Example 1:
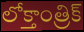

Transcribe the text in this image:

లోక్తాంత్రిక్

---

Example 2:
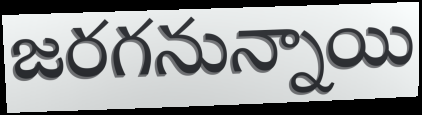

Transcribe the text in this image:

జరగనున్నాయి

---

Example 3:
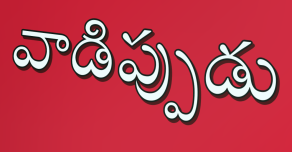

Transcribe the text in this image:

వాడిప్పుడు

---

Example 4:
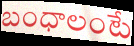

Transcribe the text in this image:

బంధాలంటే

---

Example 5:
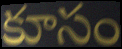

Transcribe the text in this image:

కూసం